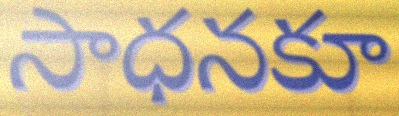
సాధనకూ